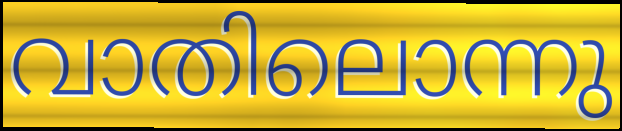
വാതിലൊന്നു